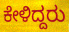
ಕೇಳಿದ್ದರು